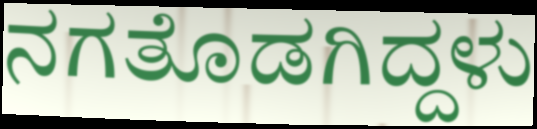
ನಗತೊಡಗಿದ್ದಳು